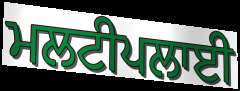
ਮਲਟੀਪਲਾਈ